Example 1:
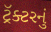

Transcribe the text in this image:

ટ્રૅક્ટરનું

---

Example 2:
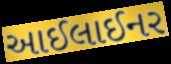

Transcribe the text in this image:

આઈલાઈનર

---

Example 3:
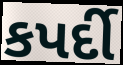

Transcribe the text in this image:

કપર્દી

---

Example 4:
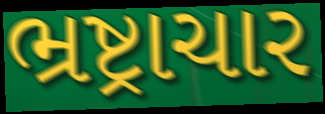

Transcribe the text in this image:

ભ્રષ્ટ્રાચાર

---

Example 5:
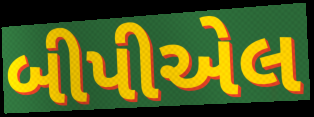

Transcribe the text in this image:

બીપીએલ